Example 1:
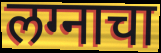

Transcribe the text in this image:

लग्नाचा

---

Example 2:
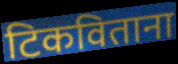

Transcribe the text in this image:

टिकविताना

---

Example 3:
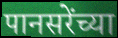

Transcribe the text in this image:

पानसरेंच्या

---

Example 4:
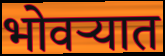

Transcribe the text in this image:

भोवऱ्यात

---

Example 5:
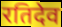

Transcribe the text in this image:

रतिदेव